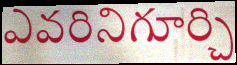
ఎవరినిగూర్చి